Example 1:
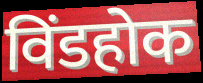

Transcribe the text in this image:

विंडहोक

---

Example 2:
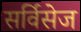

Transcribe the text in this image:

सर्विसेज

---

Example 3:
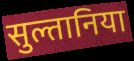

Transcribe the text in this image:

सुल्तानिया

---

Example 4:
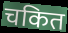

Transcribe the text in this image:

चकित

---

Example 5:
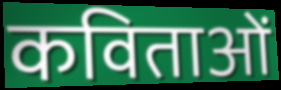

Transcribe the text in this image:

कविताओं